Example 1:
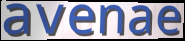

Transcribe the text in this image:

avenae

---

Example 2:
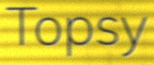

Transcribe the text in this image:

Topsy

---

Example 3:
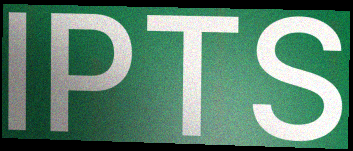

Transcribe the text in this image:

IPTS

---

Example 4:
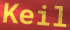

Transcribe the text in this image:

Keil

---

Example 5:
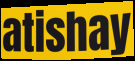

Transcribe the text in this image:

atishay